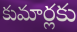
కుమార్లకు